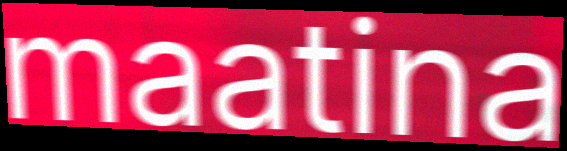
maatina